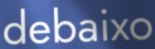
debaixo